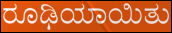
ರೂಢಿಯಾಯಿತು